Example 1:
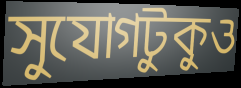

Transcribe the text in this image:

সুযোগটুকুও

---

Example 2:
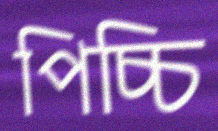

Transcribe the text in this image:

পিচ্চি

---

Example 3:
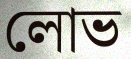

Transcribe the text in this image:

লোভ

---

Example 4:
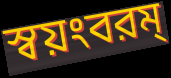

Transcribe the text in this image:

স্বয়ংবরম্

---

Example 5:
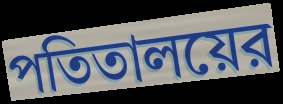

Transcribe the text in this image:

পতিতালয়ের